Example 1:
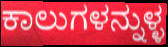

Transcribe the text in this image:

ಕಾಲುಗಳನ್ನುಳ್ಳ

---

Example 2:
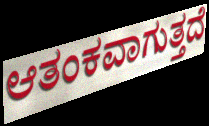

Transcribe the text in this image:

ಆತಂಕವಾಗುತ್ತದೆ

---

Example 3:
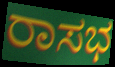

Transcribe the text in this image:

ರಾಸಭ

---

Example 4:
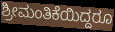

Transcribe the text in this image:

ಶ್ರೀಮಂತಿಕೆಯಿದ್ದರೂ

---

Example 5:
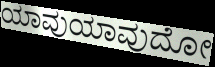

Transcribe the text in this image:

ಯಾವುಯಾವುದೋ